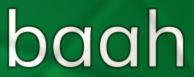
baah